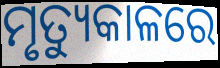
ମୃତ୍ୟୁକାଳରେ